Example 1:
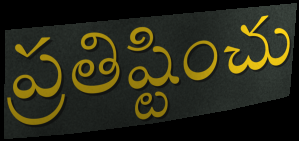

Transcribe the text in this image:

ప్రతిష్టించు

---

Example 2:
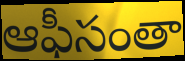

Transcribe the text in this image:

ఆఫీసంతా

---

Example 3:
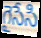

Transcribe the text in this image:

గైసేసి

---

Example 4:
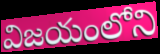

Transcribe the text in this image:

విజయంలోని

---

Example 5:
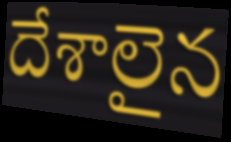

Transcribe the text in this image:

దేశాలైన